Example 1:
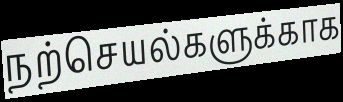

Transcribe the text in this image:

நற்செயல்களுக்காக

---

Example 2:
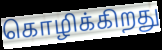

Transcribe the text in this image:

கொழிக்கிறது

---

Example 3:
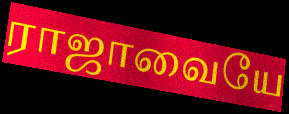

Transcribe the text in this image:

ராஜாவையே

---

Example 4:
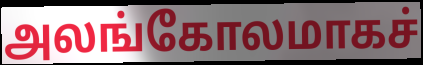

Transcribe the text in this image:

அலங்கோலமாகச்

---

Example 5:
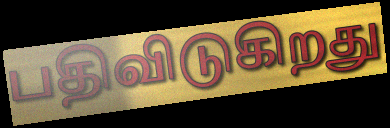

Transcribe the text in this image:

பதிவிடுகிறது